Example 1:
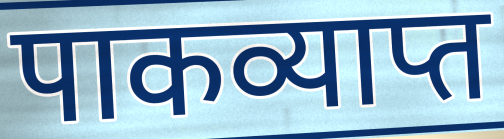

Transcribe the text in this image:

पाकव्याप्त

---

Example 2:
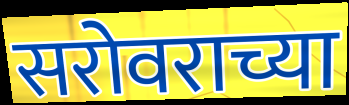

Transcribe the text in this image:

सरोवराच्या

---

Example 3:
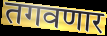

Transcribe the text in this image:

तगवणार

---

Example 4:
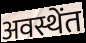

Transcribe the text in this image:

अवस्थेंत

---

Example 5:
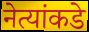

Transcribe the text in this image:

नेत्यांकडे